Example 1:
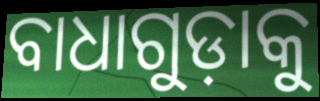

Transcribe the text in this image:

ବାଧାଗୁଡ଼ାକୁ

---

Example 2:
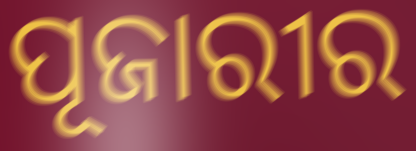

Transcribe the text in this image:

ପୂଜାରୀର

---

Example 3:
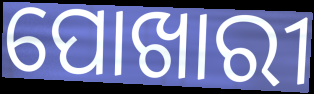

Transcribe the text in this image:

ପୋଖାରୀ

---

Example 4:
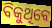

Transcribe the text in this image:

ବିକୁଥିବେ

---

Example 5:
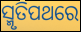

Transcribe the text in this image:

ସ୍ମୃତିପଥରେ